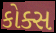
કોક્સ